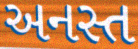
અનસ્ત